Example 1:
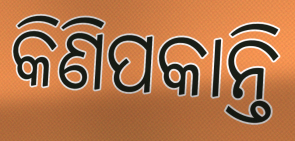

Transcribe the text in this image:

କିଣିପକାନ୍ତି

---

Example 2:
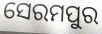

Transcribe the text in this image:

ସେରମପୁର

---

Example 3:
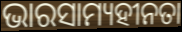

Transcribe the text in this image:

ଭାରସାମ୍ୟହୀନତା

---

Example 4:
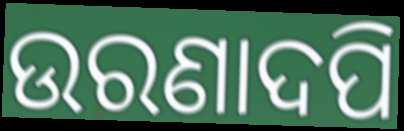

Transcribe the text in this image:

ଉରଣାଦପି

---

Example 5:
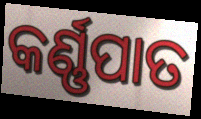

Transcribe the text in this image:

କର୍ଣ୍ଣପାତ